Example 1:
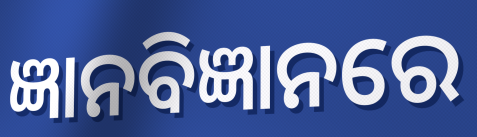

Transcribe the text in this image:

ଜ୍ଞାନବିଜ୍ଞାନରେ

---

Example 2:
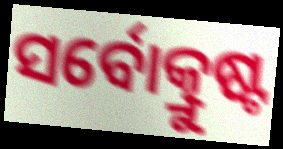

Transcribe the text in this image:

ସର୍ବୋତ୍କ୍ରୁଷ୍ଟ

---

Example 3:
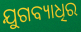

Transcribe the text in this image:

ଯୁଗବ୍ୟାଧିର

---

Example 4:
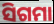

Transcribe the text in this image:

ସିଗମା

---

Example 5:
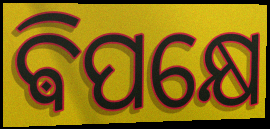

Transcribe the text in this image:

ଵିପକ୍ଷେ